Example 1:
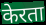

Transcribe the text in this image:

केरता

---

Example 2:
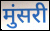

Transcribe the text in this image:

मुंसरी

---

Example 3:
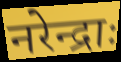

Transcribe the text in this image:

नरेन्द्राः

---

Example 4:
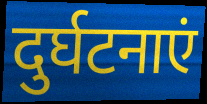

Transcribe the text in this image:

दुर्घटनाएं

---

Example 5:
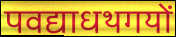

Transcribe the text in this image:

पवद्याधथगयों